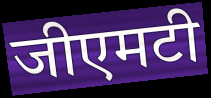
जीएमटी